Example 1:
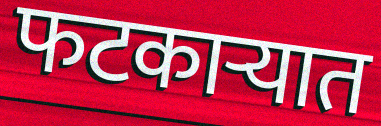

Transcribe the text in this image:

फटकाऱ्यात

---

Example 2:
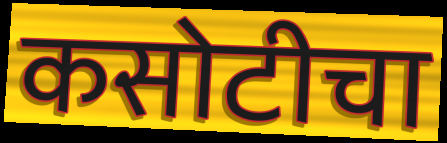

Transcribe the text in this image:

कसोटीचा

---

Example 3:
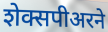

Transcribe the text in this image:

शेक्सपीअरने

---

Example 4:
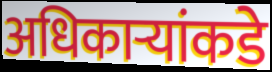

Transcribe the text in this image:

अधिकार्‍यांकडे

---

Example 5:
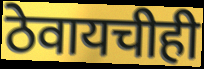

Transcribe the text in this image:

ठेवायचीही